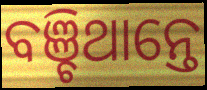
ବଞ୍ଚିଥାନ୍ତେ